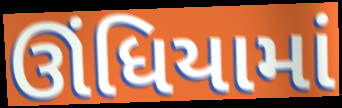
ઊંધિયામાં